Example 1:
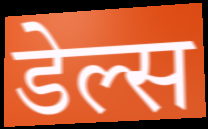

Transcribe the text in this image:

डेल्स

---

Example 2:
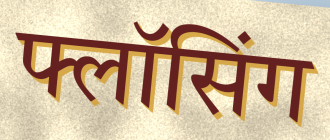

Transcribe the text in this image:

फ्लॉसिंग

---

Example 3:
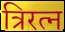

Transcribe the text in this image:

त्रिरत्न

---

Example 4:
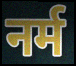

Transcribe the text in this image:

नर्म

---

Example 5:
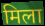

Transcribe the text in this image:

मिला